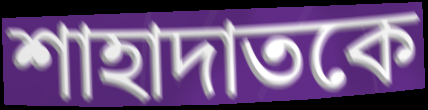
শাহাদাতকে